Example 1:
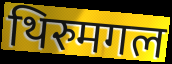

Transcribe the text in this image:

थिरुमगल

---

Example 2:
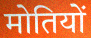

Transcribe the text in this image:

मोतियों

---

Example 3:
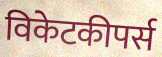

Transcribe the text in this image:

विकेटकीपर्स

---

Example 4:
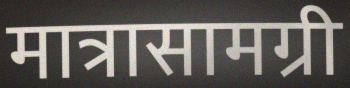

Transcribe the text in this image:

मात्रासामग्री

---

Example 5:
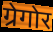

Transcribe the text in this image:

ग्रेगोर